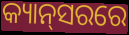
କ୍ୟାନ୍‌ସରରେ